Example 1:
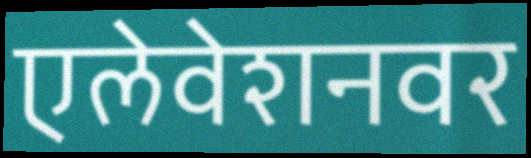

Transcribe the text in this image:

एलेवेशनवर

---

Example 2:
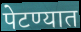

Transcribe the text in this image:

पेटण्यात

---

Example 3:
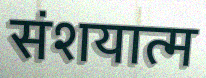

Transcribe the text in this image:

संशयात्म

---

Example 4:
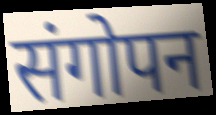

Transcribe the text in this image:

संगोपन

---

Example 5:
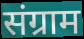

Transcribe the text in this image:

संग्राम